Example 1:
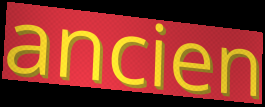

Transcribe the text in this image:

ancien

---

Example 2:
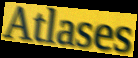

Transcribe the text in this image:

Atlases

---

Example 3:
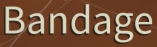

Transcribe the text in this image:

Bandage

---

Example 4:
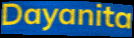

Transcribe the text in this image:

Dayanita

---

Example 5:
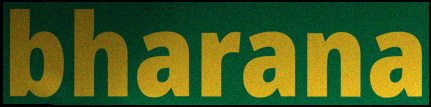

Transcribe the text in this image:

bharana